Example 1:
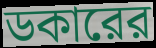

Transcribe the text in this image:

ডকারের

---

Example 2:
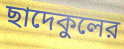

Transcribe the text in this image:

ছাদেকুলের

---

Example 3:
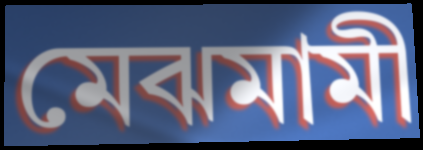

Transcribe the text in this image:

মেঝমামী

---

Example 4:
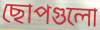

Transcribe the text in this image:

ছোপগুলো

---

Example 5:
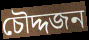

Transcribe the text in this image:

চৌদ্দজন